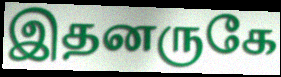
இதனருகே